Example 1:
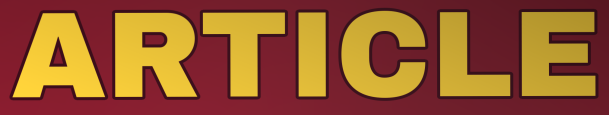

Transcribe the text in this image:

ARTICLE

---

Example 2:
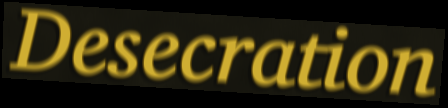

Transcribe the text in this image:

Desecration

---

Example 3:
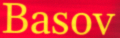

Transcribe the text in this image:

Basov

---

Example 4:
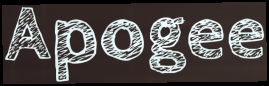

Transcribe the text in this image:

Apogee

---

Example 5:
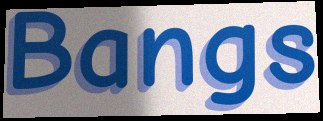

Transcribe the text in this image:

Bangs